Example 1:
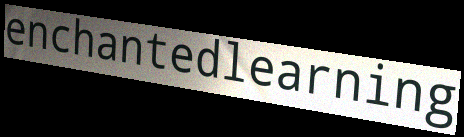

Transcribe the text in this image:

enchantedlearning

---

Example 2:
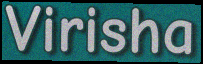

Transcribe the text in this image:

Virisha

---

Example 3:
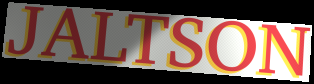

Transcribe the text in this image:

JALTSON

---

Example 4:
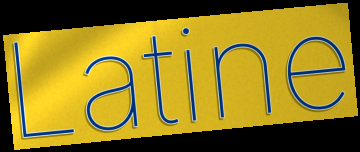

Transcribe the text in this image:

Latine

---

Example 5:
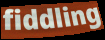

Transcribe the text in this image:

fiddling